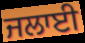
ਜਲਾਈ